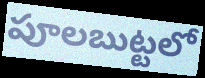
పూలబుట్టలో